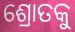
ଶ୍ରୋତକୁ